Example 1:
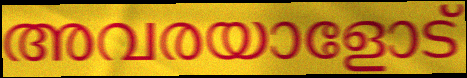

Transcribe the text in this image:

അവരയാളോട്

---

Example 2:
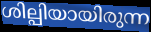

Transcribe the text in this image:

ശില്പിയായിരുന്ന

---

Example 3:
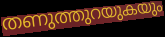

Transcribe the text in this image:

തണുത്തുറയുകയും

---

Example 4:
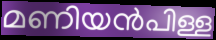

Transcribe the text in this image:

മണിയൻപിള്ള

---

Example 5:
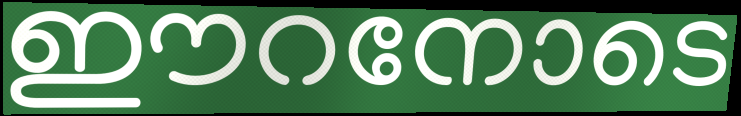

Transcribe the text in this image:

ഈറനോടെ